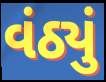
વંઠ્યું